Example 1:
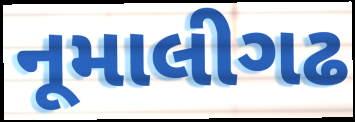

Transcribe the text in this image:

નૂમાલીગઢ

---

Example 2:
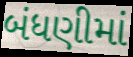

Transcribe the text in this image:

બંધણીમાં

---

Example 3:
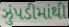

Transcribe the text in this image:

ઝુંપડીમાંથી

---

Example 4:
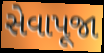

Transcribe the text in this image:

સેવાપૂજા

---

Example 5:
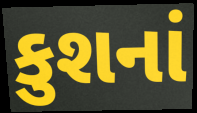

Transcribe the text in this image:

કુશનાં